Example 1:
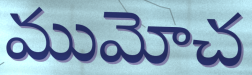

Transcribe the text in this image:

ముమోచ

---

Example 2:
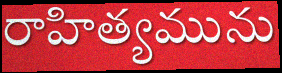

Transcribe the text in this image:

రాహిత్యమును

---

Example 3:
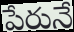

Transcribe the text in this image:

పేరునే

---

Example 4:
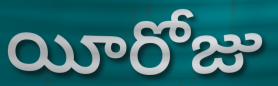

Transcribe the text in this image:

యీరోజు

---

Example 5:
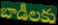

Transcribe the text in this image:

బాడీలకు